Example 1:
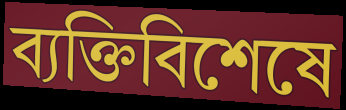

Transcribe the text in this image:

ব্যক্তিবিশেষে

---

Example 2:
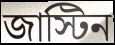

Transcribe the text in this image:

জাস্টিন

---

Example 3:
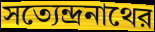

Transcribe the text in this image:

সত্যেন্দ্রনাথের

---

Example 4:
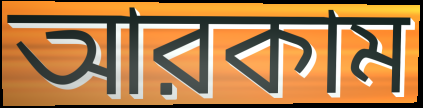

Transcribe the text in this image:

আরকাম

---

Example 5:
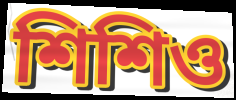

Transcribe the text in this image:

শিশিও